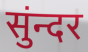
सुंन्दर